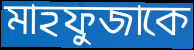
মাহফুজাকে